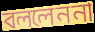
বললেননা